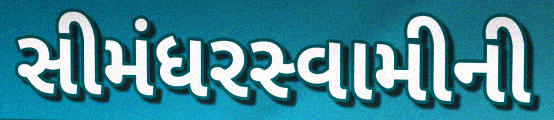
સીમંધરસ્વામીની